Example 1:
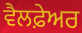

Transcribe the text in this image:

ਵੈਲਫ਼ੇਅਰ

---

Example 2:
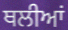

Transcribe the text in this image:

ਥਲੀਆਂ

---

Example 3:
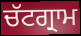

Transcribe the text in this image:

ਚੱਟਗ੍ਰਾਮ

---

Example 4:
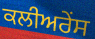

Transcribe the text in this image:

ਕਲੀਅਰੇਂਸ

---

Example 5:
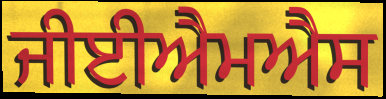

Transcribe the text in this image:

ਜੀਈਐਮਐਸ